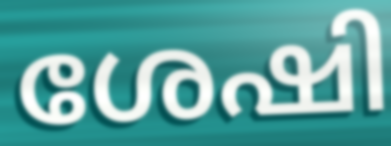
ശേഷി